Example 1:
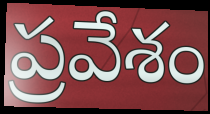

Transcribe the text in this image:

ప్రవేశం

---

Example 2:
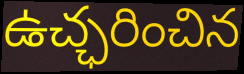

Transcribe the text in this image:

ఉచ్ఛరించిన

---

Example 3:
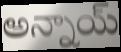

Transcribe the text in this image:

అన్నాయ్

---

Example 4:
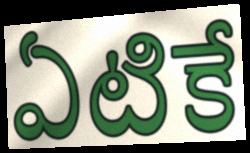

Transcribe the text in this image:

ఏటికే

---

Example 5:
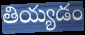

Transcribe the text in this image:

తియ్యడం